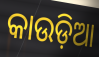
କାଉଡ଼ିଆ